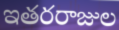
ఇతరరాజుల